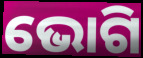
ଭୋଗି